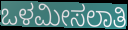
ಒಳಮೀಸಲಾತಿ